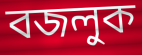
বজলুক